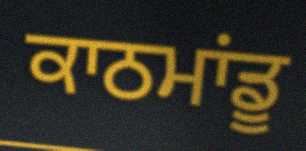
ਕਾਠਮਾਂਡੂ